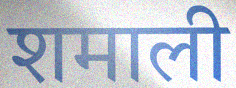
शमाली